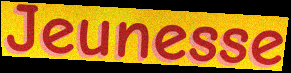
Jeunesse